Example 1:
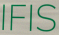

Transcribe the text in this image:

IFIS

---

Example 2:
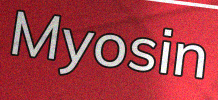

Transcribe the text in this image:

Myosin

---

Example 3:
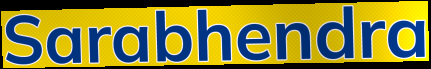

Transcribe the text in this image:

Sarabhendra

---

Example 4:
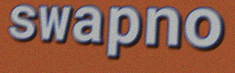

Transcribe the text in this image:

swapno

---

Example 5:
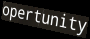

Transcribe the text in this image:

opertunity